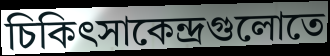
চিকিৎসাকেন্দ্রগুলোতে